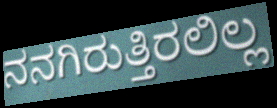
ನನಗಿರುತ್ತಿರಲಿಲ್ಲ